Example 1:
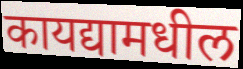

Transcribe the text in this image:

कायद्यामधील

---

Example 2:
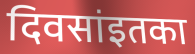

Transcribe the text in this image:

दिवसांइतका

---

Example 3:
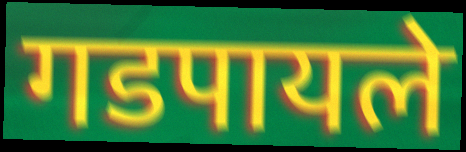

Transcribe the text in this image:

गडपायले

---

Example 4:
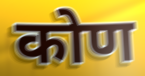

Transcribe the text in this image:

कोण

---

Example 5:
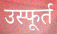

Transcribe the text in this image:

उस्फूर्त